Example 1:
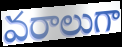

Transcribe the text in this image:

వరాలుగా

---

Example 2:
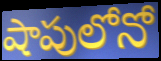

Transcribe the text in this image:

షాపులోనో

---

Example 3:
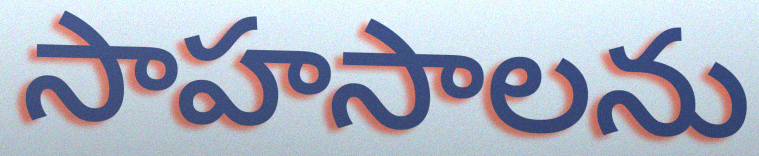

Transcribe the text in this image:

సాహసాలను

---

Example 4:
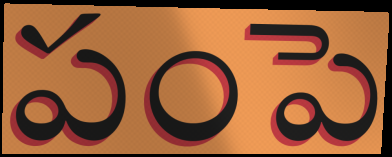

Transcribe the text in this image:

పంపె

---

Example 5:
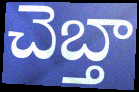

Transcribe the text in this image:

చెబ్తా